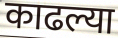
काढल्या